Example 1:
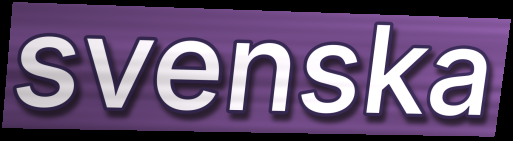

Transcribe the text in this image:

svenska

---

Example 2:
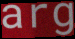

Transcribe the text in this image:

arg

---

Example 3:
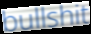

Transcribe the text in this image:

bullshit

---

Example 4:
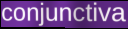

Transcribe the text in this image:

conjunctiva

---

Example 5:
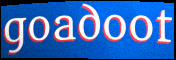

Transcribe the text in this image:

goadoot